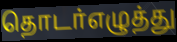
தொடர்எழுத்து